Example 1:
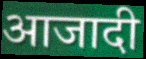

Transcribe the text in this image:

आजादी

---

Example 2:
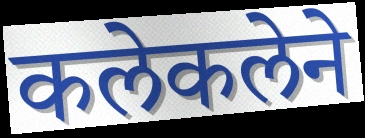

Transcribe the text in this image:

कलेकलेने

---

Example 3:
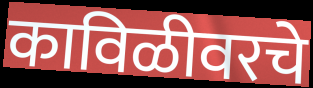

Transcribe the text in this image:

काविळीवरचे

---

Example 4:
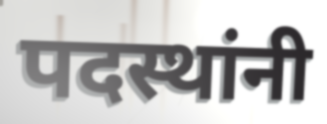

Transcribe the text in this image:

पदस्थांनी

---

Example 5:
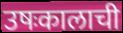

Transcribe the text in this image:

उषःकालाची